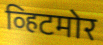
व्हिटमोर